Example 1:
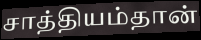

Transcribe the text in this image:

சாத்தியம்தான்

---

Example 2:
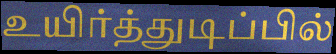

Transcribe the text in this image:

உயிர்த்துடிப்பில்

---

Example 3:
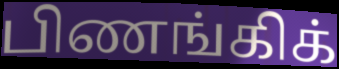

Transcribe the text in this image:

பிணங்கிக்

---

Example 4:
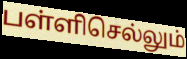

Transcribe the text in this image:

பள்ளிசெல்லும்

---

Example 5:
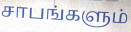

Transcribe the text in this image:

சாபங்களும்